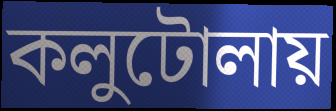
কলুটোলায়